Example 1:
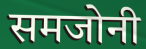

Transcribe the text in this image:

समजोनी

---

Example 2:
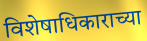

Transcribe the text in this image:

विशेषाधिकाराच्या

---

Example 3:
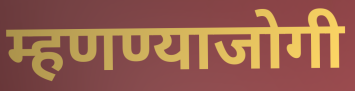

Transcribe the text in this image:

म्हणण्याजोगी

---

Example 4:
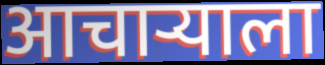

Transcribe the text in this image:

आचाऱ्याला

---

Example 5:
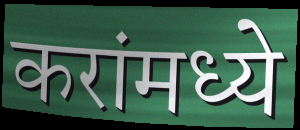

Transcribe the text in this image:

करांमध्ये